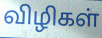
விழிகள்